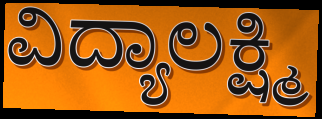
ವಿದ್ಯಾಲಕ್ಷ್ಮಿ